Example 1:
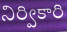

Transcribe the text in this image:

నిర్వికారి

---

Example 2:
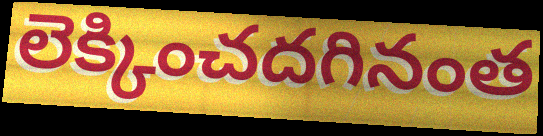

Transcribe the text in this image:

లెక్కించదగినంత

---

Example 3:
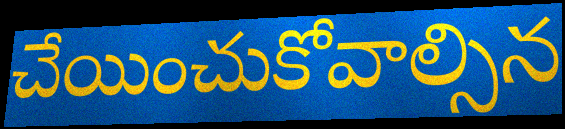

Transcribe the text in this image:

చేయించుకోవాల్సిన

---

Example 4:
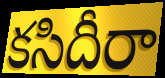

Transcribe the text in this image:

కసిదీరా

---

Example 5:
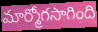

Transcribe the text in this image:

మార్మోగసాగింది